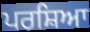
ਪਰਸ਼ਿਆ